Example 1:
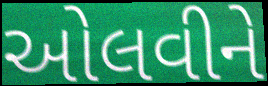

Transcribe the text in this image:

ઓલવીને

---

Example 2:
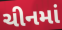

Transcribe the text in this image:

ચીનમાં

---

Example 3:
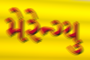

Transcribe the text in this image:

મેરેન્ગ્યુ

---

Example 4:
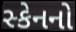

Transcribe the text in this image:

સ્કેનનો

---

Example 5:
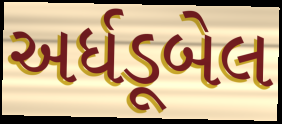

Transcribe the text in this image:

અર્ધડૂબેલ